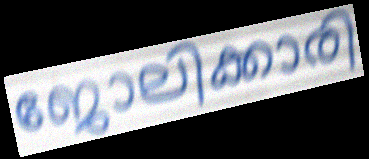
ജോലിക്കാരി